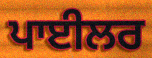
ਪਾਈਲਰ